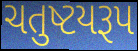
ચતુષ્ટયરૂપ